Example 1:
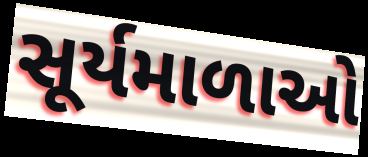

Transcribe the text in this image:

સૂર્યમાળાઓ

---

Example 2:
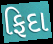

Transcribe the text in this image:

ફિદા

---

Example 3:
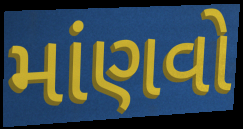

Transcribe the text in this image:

માંણવો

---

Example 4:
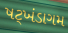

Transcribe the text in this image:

ષટ્ખંડાગમ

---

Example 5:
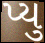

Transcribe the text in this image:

પ્યુ